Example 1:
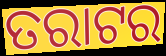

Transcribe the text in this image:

ତରାଟର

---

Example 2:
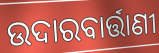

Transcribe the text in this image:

ଉଦାରବାର୍ତ୍ତାଣୀ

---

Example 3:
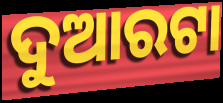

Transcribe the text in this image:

ଦୁଆରଟା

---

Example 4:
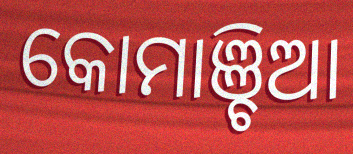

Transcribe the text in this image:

କୋମାଞ୍ଚିଆ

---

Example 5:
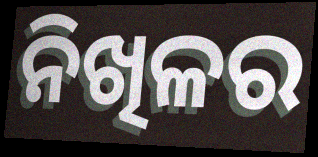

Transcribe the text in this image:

ନିଖିଳର